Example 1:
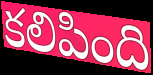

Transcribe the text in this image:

కలిపింది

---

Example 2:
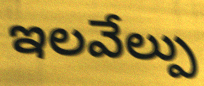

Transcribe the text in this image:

ఇలవేల్పు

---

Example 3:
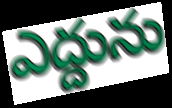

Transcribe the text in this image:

ఎద్దును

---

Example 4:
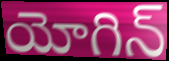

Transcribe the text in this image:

యోగిన్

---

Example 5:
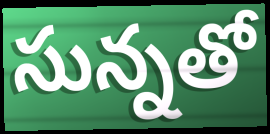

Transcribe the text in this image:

సున్నతో